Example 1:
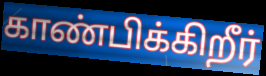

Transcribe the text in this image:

காண்பிக்கிறீர்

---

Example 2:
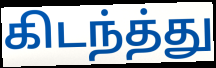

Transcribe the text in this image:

கிடந்த்து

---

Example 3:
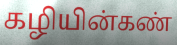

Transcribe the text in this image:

கழியின்கண்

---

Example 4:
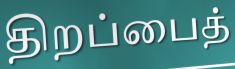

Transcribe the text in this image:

திறப்பைத்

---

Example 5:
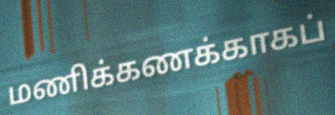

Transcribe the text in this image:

மணிக்கணக்காகப்